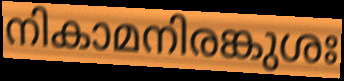
നികാമനിരങ്കുശഃ